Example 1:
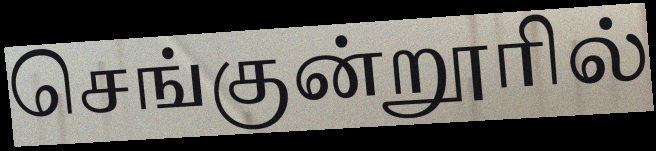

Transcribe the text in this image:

செங்குன்றூரில்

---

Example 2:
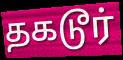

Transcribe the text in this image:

தகடூர்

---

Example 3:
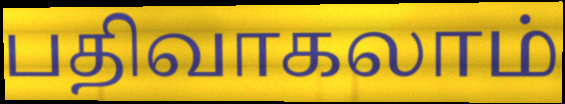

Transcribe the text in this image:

பதிவாகலாம்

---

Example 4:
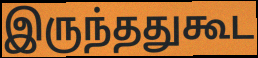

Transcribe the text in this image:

இருந்ததுகூட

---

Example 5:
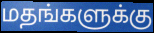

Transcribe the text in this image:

மதங்களுக்கு